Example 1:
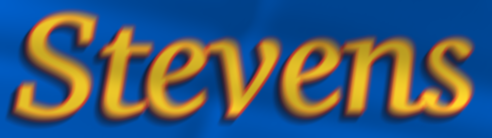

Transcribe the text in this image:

Stevens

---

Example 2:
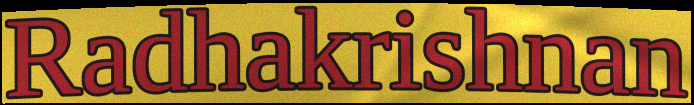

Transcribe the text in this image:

Radhakrishnan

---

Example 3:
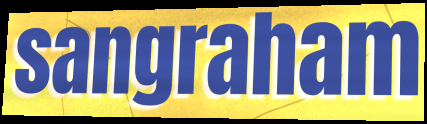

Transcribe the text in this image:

sangraham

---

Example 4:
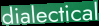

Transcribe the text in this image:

dialectical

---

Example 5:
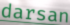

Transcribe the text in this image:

darsan